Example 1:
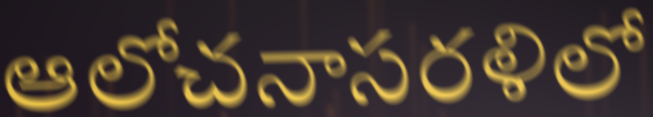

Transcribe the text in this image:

ఆలోచనాసరళిలో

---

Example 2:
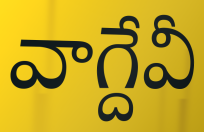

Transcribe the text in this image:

వాగ్దేవీ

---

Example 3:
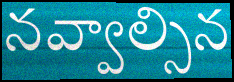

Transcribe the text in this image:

నవ్వాల్సిన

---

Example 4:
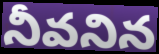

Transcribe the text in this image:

నీవనిన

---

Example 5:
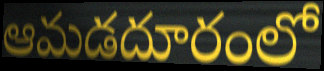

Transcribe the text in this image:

ఆమడదూరంలో